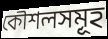
কৌশলসমূহ